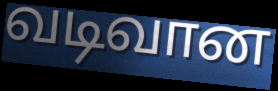
வடிவான